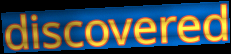
discovered